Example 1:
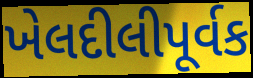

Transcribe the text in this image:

ખેલદીલીપૂર્વક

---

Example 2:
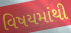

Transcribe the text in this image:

વિષયમાંથી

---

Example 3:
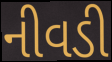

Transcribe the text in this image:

નીવડી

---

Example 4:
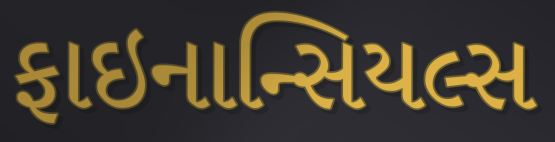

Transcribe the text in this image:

ફાઇનાન્સિયલ્સ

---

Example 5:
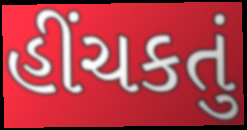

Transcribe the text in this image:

હીંચકતું